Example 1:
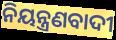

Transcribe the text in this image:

ନିୟନ୍ତ୍ରଣବାଦୀ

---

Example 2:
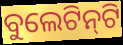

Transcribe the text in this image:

ବୁଲେଟିନ୍‍ଟି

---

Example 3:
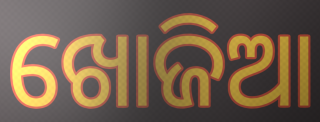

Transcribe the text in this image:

ଖୋଜିଆ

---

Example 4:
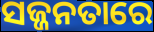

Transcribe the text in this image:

ସଜ୍ଜନତାରେ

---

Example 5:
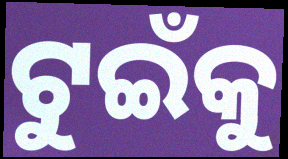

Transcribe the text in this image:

ଟୁଇଁକୁ